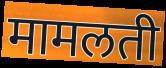
मामलती